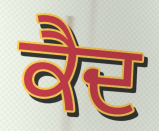
ਕੈਦ